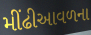
મીંઢીઆવળના